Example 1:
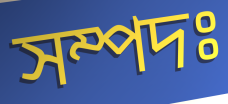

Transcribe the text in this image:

সম্পদঃ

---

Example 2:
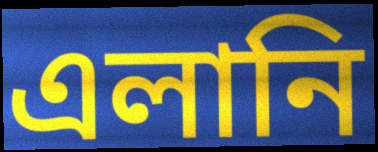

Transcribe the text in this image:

এলানি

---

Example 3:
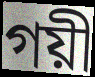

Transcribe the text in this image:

গয়ী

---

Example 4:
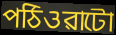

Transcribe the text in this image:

পঠিওৱাটো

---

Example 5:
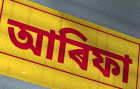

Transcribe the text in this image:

আৰিফা